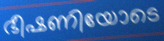
ഭീഷണിയോടെ